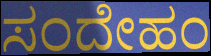
ಸಂದೇಹಂ